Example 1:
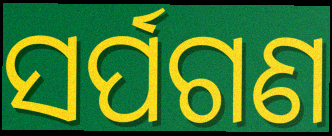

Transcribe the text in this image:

ସର୍ପଗଣ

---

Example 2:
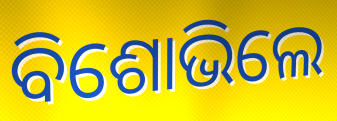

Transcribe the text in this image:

ବିଶୋଭିଲେ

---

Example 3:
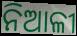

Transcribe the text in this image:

ନିଆଳୀ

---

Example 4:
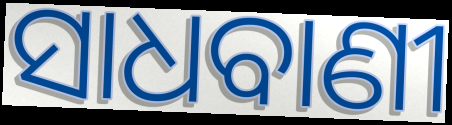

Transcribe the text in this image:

ସାଧବାଣୀ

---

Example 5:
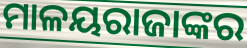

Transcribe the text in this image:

ମାଳୟରାଜାଙ୍କର